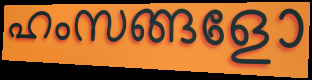
ഹംസങ്ങളോ